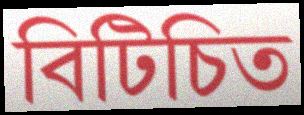
বিটিচিত